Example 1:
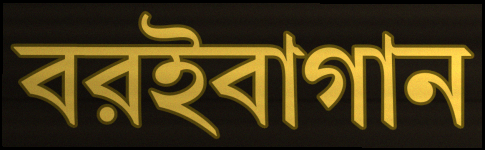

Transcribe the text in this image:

বরইবাগান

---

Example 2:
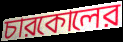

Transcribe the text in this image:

চারকোলের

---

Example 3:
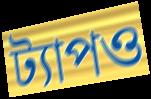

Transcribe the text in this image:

ট্যাপও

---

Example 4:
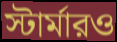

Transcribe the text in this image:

স্টার্মারও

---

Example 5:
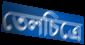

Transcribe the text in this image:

তেলচিত্রে